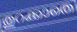
തുറക്കാതെ